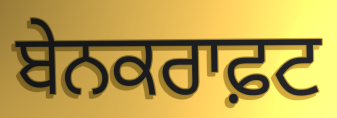
ਬੇਨਕਰਾਫ਼ਟ